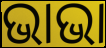
ଭାଭା